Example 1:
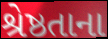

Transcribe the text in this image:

શ્રેષ્ઠતાના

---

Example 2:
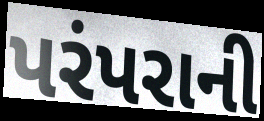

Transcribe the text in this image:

પરંપરાની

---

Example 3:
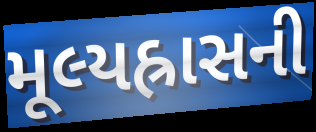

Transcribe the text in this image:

મૂલ્યહ્રાસની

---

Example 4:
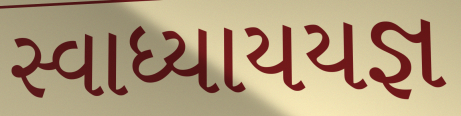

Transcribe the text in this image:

સ્વાધ્યાયયજ્ઞ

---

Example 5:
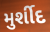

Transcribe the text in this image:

મુર્શીદ